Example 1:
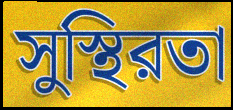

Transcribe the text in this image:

সুস্থিরতা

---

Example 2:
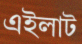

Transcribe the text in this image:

এইলাট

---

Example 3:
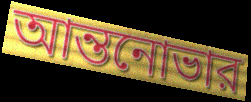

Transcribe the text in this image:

আন্তনোভার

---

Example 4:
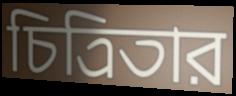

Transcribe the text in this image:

চিত্রিতার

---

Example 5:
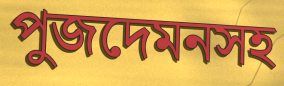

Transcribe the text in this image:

পুজদেমনসহ